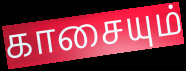
காசையும்